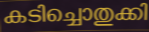
കടിച്ചൊതുക്കി